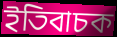
ইতিবাচক